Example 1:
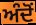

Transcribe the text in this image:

ਅੰਦੋਂ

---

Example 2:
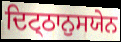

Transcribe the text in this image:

ਦਿਟ੍ਠਾਨੁਸਯੇਨ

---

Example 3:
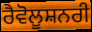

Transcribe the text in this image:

ਰੈਵੋਲੂਸ਼ਨਰੀ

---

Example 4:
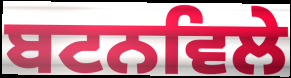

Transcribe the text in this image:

ਬਟਨਵਿਲੇ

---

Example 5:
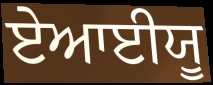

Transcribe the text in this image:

ਏਆਈਯੂ